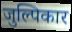
जुल्पिकार